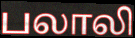
பலாலி